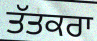
ਤੱਤਕਰਾ